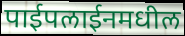
पाईपलाईनमधील